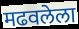
मढवलेला